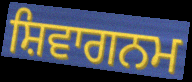
ਸ਼ਿਵਾਗਨਮ